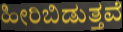
ಹೀರಿಬಿಡುತ್ತವೆ